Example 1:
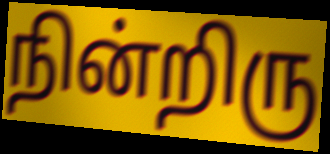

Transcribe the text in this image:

நின்றிரு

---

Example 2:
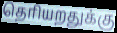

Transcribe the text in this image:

தெரியறதுக்கு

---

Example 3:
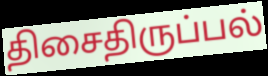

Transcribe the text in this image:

திசைதிருப்பல்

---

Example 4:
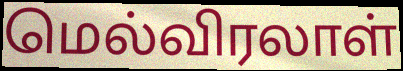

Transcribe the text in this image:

மெல்விரலாள்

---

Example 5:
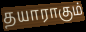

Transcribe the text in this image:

தயாராகும்